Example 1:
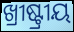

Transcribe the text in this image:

ଖ୍ରୀଷ୍ଟ୍ରୀୟ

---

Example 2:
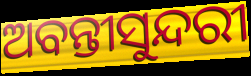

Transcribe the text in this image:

ଅବନ୍ତୀସୁନ୍ଦରୀ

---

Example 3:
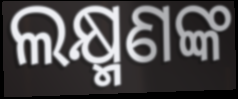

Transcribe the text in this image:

ଲକ୍ଷ୍ମଣଙ୍କ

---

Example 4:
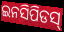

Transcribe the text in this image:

ଇନସିପିଡସ୍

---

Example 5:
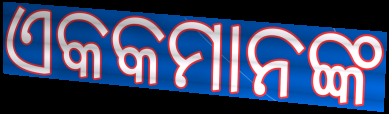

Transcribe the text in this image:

ଏକକମାନଙ୍କ